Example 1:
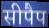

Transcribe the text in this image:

सीपैप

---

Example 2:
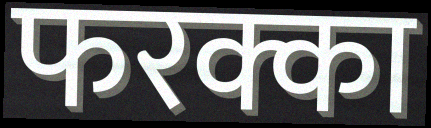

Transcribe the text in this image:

फरक्का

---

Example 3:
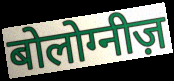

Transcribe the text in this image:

बोलोग्नीज़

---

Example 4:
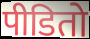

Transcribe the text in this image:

पीडितो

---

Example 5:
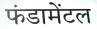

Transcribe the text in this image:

फंडामेंटल